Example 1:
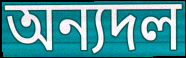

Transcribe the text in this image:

অন্যদল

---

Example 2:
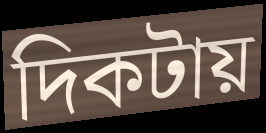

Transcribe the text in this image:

দিকটায়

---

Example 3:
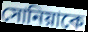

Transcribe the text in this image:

সোনিয়াকে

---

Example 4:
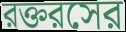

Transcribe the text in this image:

রক্তরসের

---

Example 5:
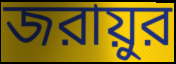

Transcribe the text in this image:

জরায়ুর